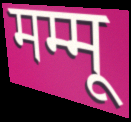
मम्मू